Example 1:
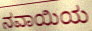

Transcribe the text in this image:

ನವಾಯಿಯ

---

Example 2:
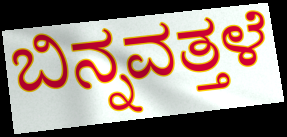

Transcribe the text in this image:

ಬಿನ್ನವತ್ತಳೆ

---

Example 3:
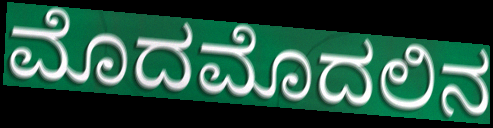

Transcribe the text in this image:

ಮೊದಮೊದಲಿನ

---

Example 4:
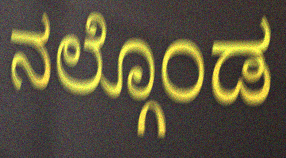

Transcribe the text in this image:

ನಲ್ಗೊಂಡ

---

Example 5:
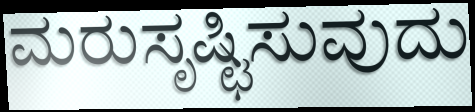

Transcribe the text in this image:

ಮರುಸೃಷ್ಟಿಸುವುದು